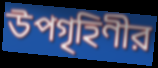
উপগৃহিণীর